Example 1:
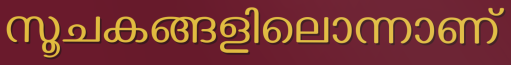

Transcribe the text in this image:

സൂചകങ്ങളിലൊന്നാണ്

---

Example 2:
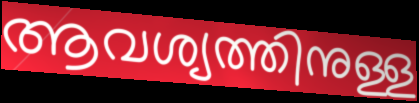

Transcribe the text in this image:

ആവശ്യത്തിനുള്ള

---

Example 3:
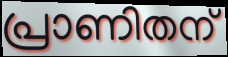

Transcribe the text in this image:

പ്രാണിതന്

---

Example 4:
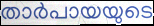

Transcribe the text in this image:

താർപായയുടെ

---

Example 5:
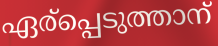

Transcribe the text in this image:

ഏര്പ്പെടുത്താന്